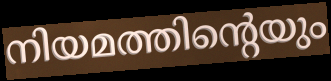
നിയമത്തിന്റെയും